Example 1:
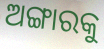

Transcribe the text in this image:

ଅଙ୍ଗାରକୁ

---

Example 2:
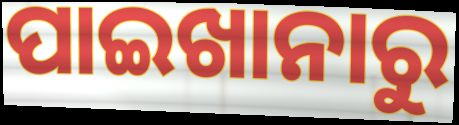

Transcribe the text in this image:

ପାଇଖାନାରୁ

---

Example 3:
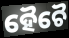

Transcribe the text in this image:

ହୈଚୈ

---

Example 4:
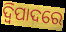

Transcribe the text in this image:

ଦ୍ୱିପାଦରେ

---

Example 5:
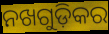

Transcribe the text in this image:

ନଖଗୁଡ଼ିକର